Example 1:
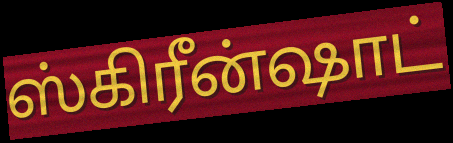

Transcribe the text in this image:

ஸ்கிரீன்ஷாட்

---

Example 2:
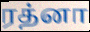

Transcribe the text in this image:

ரத்னா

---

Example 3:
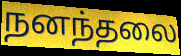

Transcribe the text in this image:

நனந்தலை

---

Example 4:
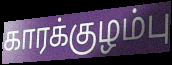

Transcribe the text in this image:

காரக்குழம்பு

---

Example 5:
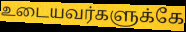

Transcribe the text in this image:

உடையவர்களுக்கே